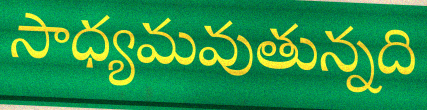
సాధ్యమవుతున్నది